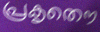
പ്രകൃതൌ